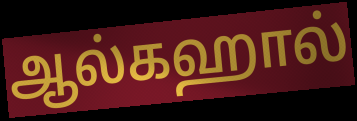
ஆல்கஹால்